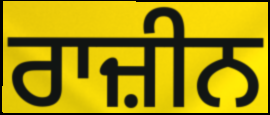
ਰਾਜ਼ੀਨ